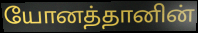
யோனத்தானின்